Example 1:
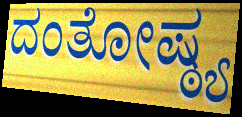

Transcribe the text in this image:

ದಂತೋಷ್ಠ್ಯ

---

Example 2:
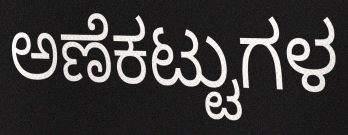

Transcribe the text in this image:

ಅಣೆಕಟ್ಟುಗಳ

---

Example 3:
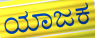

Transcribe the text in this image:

ಯಾಜಕ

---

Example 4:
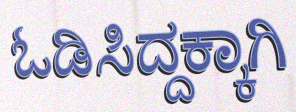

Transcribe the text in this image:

ಓಡಿಸಿದ್ದಕ್ಕಾಗಿ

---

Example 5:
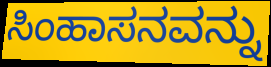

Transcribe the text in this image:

ಸಿಂಹಾಸನವನ್ನು